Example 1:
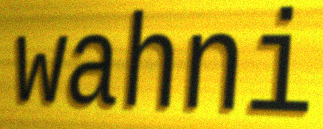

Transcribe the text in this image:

wahni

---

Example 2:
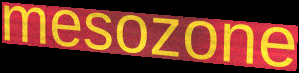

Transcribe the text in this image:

mesozone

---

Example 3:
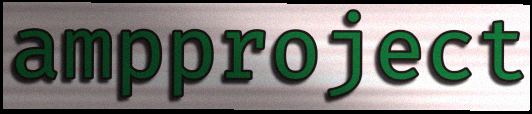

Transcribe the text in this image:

ampproject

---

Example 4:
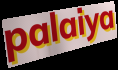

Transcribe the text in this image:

palaiya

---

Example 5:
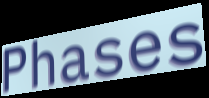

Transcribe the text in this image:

Phases